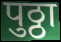
पुठ्ठा